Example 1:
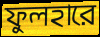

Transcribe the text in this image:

ফুলহারে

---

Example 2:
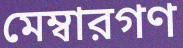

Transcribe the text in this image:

মেম্বারগণ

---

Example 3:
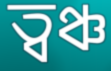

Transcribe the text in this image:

ত্বঞ্চ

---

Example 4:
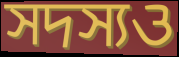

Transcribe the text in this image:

সদস্যও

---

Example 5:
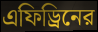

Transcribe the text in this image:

এফিড্রিনের